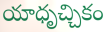
యాధృచ్చికం